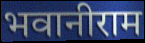
भवानीराम